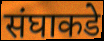
संघाकडे